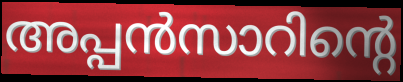
അപ്പൻസാറിന്റെ